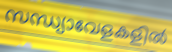
സന്ധ്യാവേളകളിൽ